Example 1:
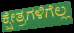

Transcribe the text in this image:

ಕ್ಷೇತ್ರಗಳಿಗೆಲ್ಲ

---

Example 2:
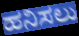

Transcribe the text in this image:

ಹನಿಸಲು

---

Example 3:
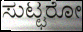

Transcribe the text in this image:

ಸುಟ್ಟರೋ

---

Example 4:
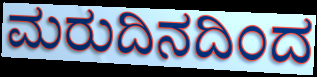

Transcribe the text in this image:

ಮರುದಿನದಿಂದ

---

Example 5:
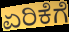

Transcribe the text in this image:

ಏರಿಕೆಗೆ